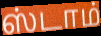
ஸ்டாம்